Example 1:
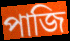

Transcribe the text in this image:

পাজি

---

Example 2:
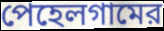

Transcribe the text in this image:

পেহেলগামের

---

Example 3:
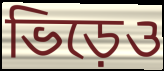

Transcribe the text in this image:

ভিড়েও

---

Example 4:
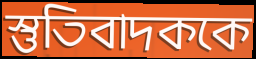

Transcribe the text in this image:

স্তুতিবাদককে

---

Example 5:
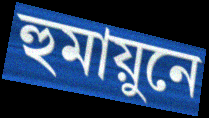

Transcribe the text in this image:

হুমায়ুনে